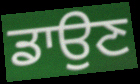
ਡਾਉਣ